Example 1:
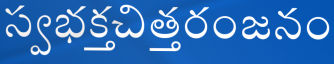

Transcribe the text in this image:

స్వభక్తచిత్తరంజనం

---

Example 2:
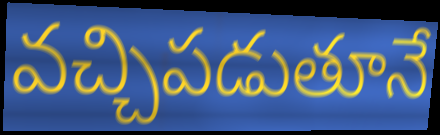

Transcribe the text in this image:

వచ్చిపడుతూనే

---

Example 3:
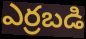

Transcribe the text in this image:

ఎర్రబడి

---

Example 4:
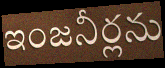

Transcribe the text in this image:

ఇంజనీర్లను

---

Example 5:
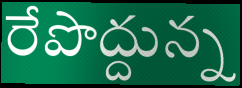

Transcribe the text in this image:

రేపొద్దున్న